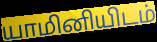
யாமினியிடம்